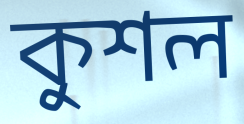
কুশল